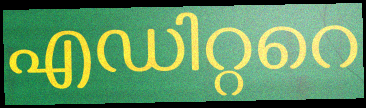
എഡിറ്ററെ